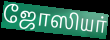
ஜோஸியர்